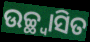
ଉଚ୍ଛ୍ୱାସିତ